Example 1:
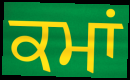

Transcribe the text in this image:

ਕਮਾਂ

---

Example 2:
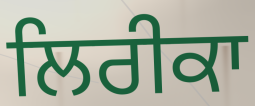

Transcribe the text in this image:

ਲਿਰੀਕਾ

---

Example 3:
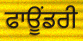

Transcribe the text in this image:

ਫਾਊਂਡਰੀ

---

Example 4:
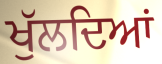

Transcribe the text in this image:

ਖੁੱਲਦਿਆਂ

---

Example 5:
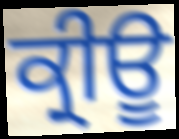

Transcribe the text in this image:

ਕ੍ਰੀਊ